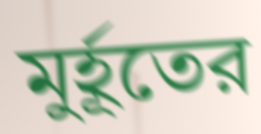
মুর্হূতের